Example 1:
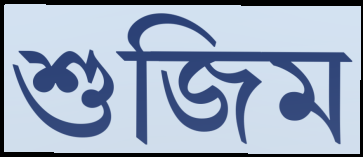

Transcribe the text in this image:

শুজিম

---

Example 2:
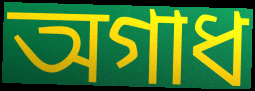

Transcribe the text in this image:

অগাধ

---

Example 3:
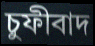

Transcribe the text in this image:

চুফীবাদ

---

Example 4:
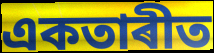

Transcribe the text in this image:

একতাৰীত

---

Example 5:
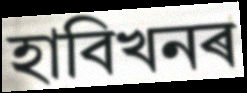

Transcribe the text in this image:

হাবিখনৰ